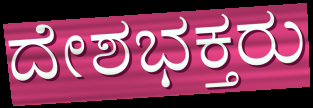
ದೇಶಭಕ್ತರು